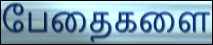
பேதைகளை